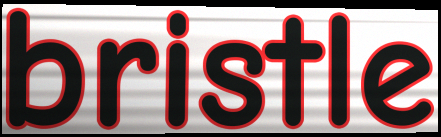
bristle